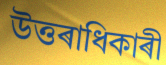
উত্তৰাধিকাৰী